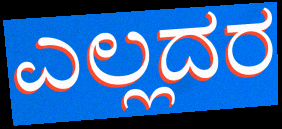
ಎಲ್ಲದರ